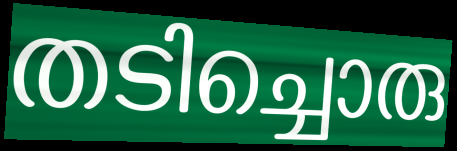
തടിച്ചൊരു